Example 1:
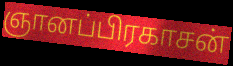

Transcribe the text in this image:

ஞானப்பிரகாசன்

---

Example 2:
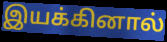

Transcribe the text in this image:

இயக்கினால்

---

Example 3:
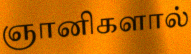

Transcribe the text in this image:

ஞானிகளால்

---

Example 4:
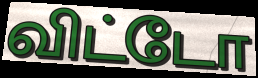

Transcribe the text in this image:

விட்டோ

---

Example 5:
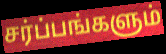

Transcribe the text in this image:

சர்ப்பங்களும்